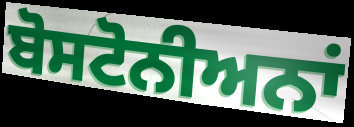
ਬੋਸਟੋਨੀਅਨਾਂ